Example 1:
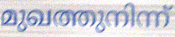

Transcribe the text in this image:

മുഖത്തുനിന്ന്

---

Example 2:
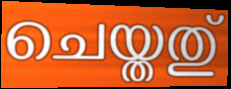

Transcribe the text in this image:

ചെയ്തതു്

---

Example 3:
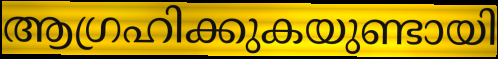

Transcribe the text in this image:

ആഗ്രഹിക്കുകയുണ്ടായി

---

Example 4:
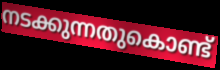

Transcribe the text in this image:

നടക്കുന്നതുകൊണ്ട്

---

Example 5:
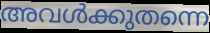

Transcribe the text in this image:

അവൾക്കുതന്നെ